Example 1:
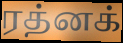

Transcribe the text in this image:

ரத்னக்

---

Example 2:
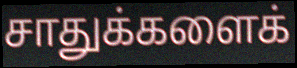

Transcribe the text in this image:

சாதுக்களைக்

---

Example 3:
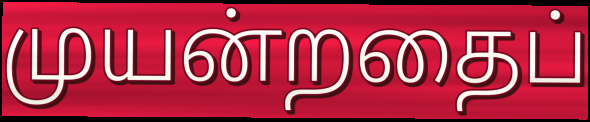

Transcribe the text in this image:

முயன்றதைப்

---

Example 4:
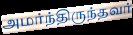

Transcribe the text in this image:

அமர்ந்திருந்தவர்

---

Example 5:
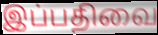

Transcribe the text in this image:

இப்பதிவை